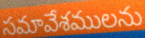
సమావేశములను